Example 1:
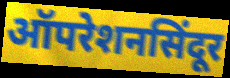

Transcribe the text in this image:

ऑपरेशनसिंदूर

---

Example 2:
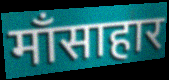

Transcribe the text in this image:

माँसाहार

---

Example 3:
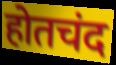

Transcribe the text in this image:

होतचंद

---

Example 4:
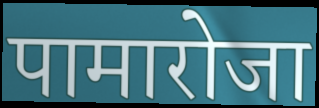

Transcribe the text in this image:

पामारोजा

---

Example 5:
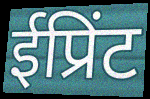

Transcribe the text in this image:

ईप्रिंट